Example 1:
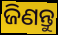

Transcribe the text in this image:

ଜିଣନ୍ତୁ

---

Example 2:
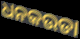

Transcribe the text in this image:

ଧନକଉଡା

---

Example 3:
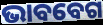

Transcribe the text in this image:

ଭାବବେଗ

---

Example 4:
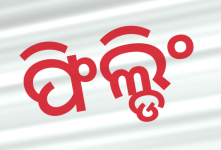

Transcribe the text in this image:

ଫିଲ୍ଡିଂ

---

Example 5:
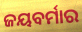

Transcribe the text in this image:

ଜୟବର୍ମାର